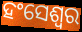
ହଂସେଶ୍ୱର